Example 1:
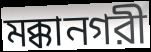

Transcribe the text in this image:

মক্কানগরী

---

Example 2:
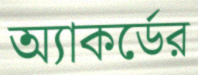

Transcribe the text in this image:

অ্যাকর্ডের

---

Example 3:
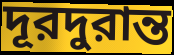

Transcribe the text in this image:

দূরদুরান্ত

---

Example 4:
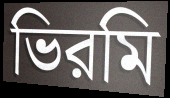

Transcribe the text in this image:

ভিরমি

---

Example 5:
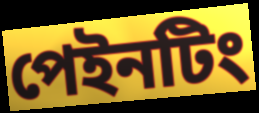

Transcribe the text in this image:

পেইনটিং